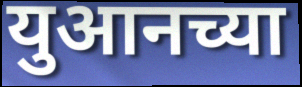
युआनच्या